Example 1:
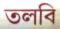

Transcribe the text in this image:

তলবি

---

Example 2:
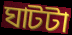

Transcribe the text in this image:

ঘাটটা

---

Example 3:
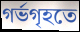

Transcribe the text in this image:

গর্ভগৃহতে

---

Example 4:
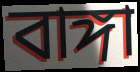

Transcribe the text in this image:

বাঙ্গা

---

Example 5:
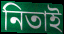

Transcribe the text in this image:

নিতাই